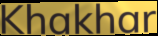
Khakhar